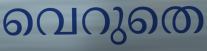
വെറുതെ